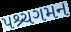
પશ્ર્ચગમન